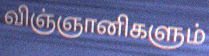
விஞ்ஞானிகளும்